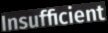
Insufficient